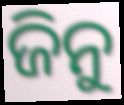
ଜିନୁ